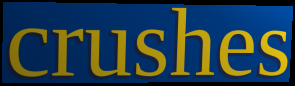
crushes